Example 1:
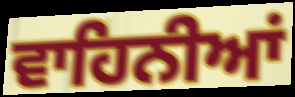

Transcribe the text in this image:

ਵਾਹਿਨੀਆਂ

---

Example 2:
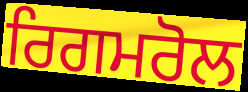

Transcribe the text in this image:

ਰਿਗਮਰੋਲ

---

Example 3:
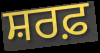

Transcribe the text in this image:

ਸ਼ਰਫ਼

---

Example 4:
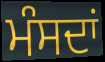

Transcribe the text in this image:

ਮੰਸਦਾਂ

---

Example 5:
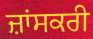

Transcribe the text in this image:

ਜ਼ਾਂਸਕਰੀ